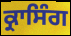
ਕ੍ਰਾਸਿੰਗ